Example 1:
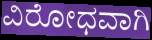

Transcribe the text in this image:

ವಿರೋಧವಾಗಿ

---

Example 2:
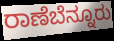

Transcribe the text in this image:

ರಾಣೆಬೆನ್ನೂರು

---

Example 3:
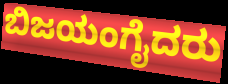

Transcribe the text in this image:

ಬಿಜಯಂಗೈದರು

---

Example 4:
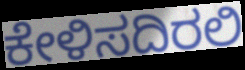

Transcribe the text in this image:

ಕೇಳಿಸದಿರಲಿ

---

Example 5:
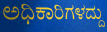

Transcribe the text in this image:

ಅಧಿಕಾರಿಗಳದ್ದು